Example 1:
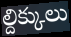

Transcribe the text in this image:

ల్దిక్కులు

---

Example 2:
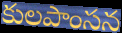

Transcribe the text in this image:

కులపాంసన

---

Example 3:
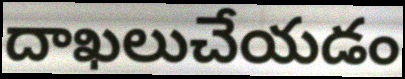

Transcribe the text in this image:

దాఖలుచేయడం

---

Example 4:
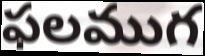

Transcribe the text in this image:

ఫలముగ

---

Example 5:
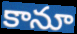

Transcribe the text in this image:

కానూ